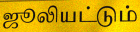
ஜூலியட்டும்